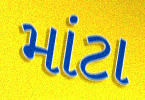
માંટા